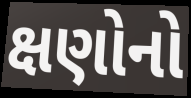
ક્ષણોનો